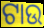
ଟାଉ